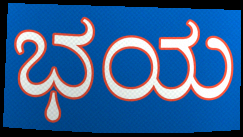
ಭಯ